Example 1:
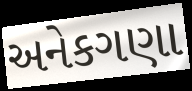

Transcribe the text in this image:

અનેકગણા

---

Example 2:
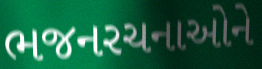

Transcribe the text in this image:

ભજનરચનાઓને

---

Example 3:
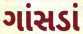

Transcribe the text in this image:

ગાંસડાં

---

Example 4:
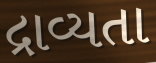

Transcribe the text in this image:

દ્રાવ્યતા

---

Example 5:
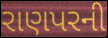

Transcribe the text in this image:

રાણપરની